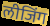
लीजिंग